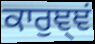
ਕਾਰੁਞ੍ਞਂ